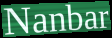
Nanbar